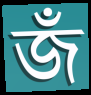
জঁ